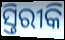
ସ୍ତିରୀକି